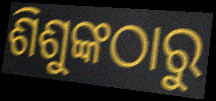
ଶିଶୁଙ୍କଠାରୁ